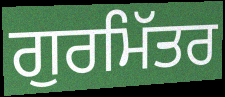
ਗੁਰਮਿੱਤਰ